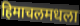
हिमाचलमधला